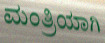
ಮಂತ್ರಿಯಾಗಿ